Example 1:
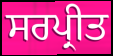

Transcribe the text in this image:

ਸਰਪ੍ਰੀਤ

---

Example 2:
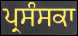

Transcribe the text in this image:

ਪ੍ਰਸੰਸਕਾ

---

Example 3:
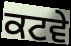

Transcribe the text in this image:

ਕਟਵੇ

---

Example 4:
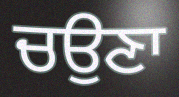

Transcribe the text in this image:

ਚਉਣਾ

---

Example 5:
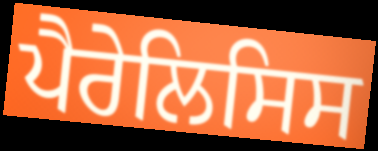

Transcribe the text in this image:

ਪੈਰੇਲਿਸਿਸ